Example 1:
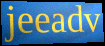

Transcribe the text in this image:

jeeadv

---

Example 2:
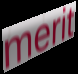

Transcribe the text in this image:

merit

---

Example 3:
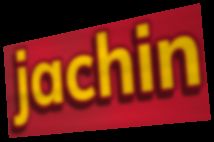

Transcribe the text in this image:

jachin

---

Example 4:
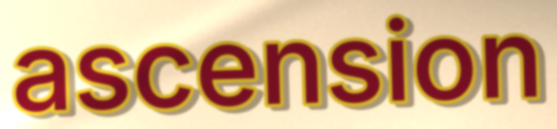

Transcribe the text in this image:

ascension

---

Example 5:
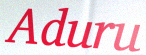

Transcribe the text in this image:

Aduru